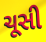
ચૂસી